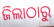
ଜିଲାଠାରୁ